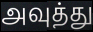
அவுத்து